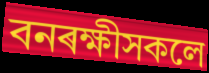
বনৰক্ষীসকলে